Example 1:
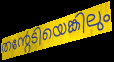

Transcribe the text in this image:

തന്റേടിയെങ്കിലും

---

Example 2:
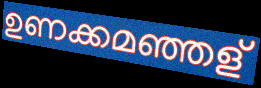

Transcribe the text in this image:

ഉണക്കമഞ്ഞള്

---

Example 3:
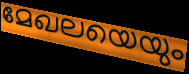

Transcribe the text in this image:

മേഖലയെയും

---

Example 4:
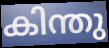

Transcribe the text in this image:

കിന്തു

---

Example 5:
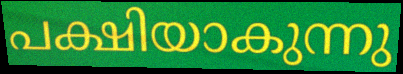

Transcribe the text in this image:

പക്ഷിയാകുന്നു